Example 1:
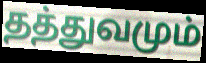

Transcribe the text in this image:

தத்துவமும்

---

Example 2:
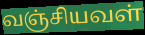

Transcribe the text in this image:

வஞ்சியவள்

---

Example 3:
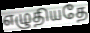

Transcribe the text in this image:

எழுதியதே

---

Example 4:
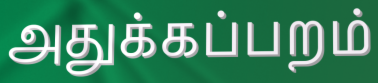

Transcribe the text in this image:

அதுக்கப்பறம்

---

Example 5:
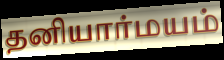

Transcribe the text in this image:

தனியார்மயம்